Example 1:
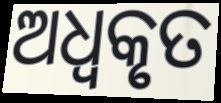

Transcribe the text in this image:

ଅଧ୍ବକୃତ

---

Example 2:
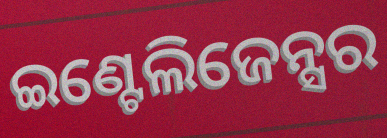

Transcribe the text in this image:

ଇଣ୍ଟେଲିଜେନ୍ସର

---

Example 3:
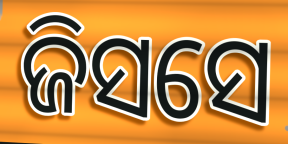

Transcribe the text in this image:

ଜିସସେ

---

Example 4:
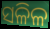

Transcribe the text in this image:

ସଳିଳ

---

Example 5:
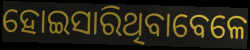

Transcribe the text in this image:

ହୋଇସାରିଥିବାବେଳେ